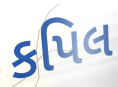
કપિલ